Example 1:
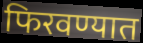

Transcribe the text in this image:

फिरवण्यात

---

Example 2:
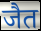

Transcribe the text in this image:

जैत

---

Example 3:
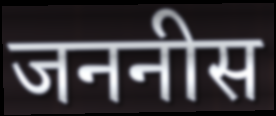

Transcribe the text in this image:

जननीस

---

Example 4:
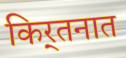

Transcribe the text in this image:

किर्तनात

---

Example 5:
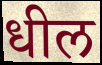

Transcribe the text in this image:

धील